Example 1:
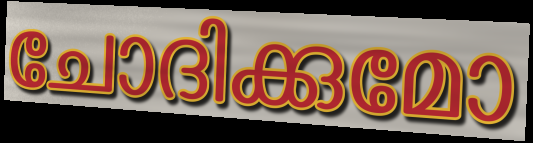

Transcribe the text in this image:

ചോദിക്കുമോ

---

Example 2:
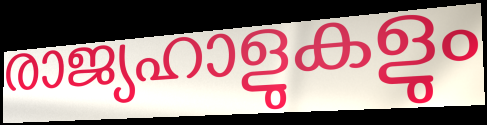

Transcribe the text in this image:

രാജ്യഹാളുകളും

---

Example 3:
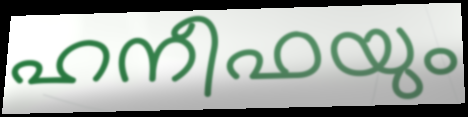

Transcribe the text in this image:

ഹനീഫയും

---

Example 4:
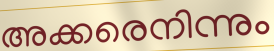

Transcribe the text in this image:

അക്കരെനിന്നും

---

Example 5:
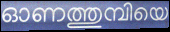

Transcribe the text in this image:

ഓണത്തുമ്പിയെ